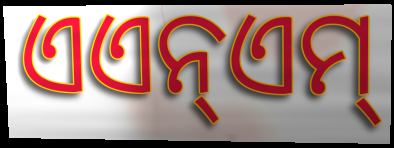
ଏଏନ୍ଏମ୍